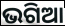
ଭଗିଆ